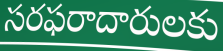
సరఫరాదారులకు